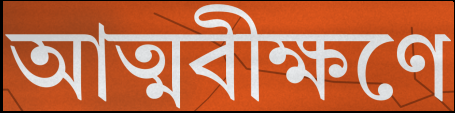
আত্মবীক্ষণে